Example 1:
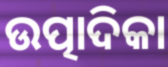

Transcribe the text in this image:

ଉତ୍ପାଦିକା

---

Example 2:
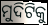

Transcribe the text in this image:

ମୁଦିଟିକୁ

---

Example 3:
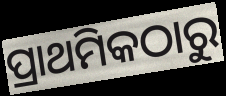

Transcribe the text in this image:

ପ୍ରାଥମିକଠାରୁ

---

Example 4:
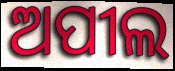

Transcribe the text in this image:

ଅପୀଲ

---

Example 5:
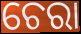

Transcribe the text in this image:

ଚେରା